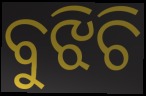
ବୁଝିଚି